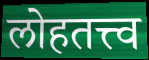
लोहतत्त्व